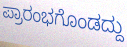
ಪ್ರಾರಂಭಗೊಂಡದ್ದು